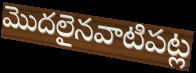
మొదలైనవాటిపట్ల